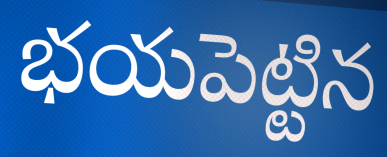
భయపెట్టిన